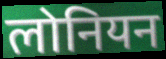
लोनियन